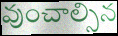
వుంచాల్సిన